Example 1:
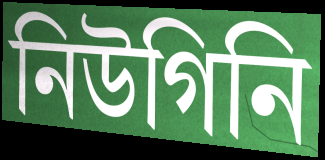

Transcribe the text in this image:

নিউগিনি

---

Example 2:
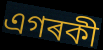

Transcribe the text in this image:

এগৰকী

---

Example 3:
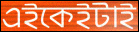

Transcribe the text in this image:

এইকেইটাই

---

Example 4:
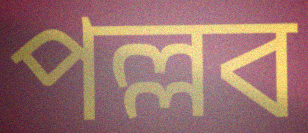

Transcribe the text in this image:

পল্লব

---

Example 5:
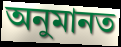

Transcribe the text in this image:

অনুমানত